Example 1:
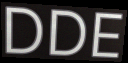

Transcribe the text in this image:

DDE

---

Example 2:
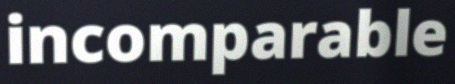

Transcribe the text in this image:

incomparable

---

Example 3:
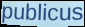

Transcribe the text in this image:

publicus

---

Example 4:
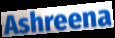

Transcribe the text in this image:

Ashreena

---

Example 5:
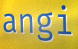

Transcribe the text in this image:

angi